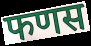
फणस